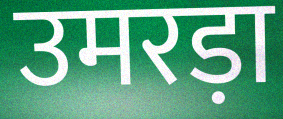
उमरड़ा